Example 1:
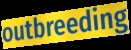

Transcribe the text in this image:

outbreeding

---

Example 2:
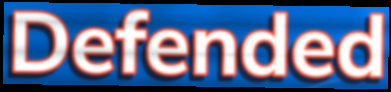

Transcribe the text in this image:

Defended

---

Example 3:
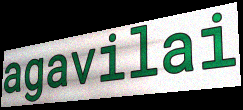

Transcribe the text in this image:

agavilai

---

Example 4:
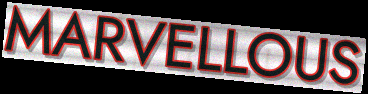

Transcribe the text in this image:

MARVELLOUS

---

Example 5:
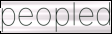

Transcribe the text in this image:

peopled